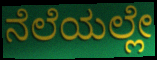
ನೆಲೆಯಲ್ಲೇ